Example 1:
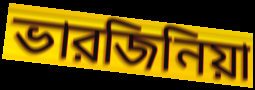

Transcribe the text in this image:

ভারজিনিয়া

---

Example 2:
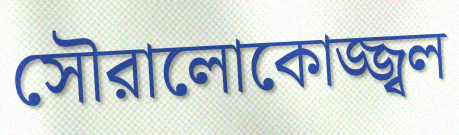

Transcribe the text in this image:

সৌরালোকোজ্জ্বল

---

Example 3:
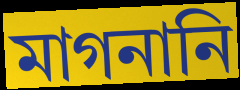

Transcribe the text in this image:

মাগনানি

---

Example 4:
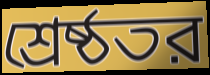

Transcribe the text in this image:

শ্রেষ্ঠতর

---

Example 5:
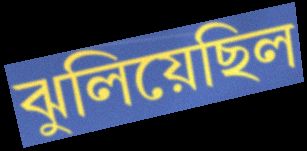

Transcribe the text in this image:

ঝুলিয়েছিল